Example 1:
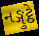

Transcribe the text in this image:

નઙ્ગુટ્ઠે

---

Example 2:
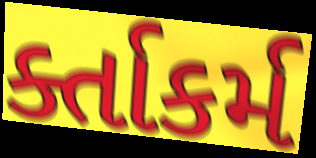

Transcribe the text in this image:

ર્ક્તાકર્મ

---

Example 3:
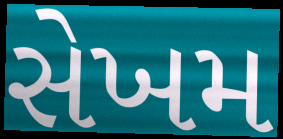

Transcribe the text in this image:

સેખમ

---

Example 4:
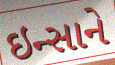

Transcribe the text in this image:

ઇન્સાને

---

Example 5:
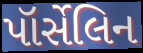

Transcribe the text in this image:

પૉર્સેલિન